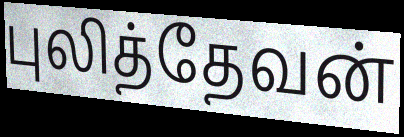
புலித்தேவன்